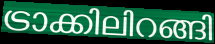
ട്രാക്കിലിറങ്ങി